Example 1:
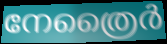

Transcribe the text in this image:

നേത്രൈർ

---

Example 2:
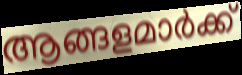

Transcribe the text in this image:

ആങ്ങളമാർക്ക്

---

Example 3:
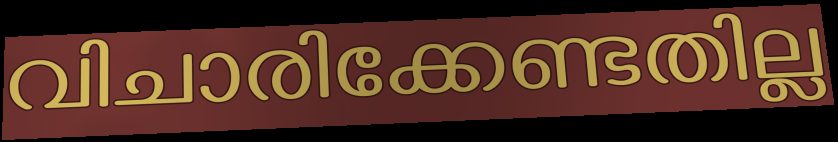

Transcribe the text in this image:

വിചാരിക്കേണ്ടതില്ല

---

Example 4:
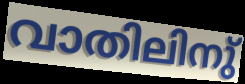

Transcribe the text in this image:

വാതിലിനു്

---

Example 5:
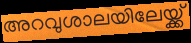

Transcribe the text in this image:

അറവുശാലയിലേയ്ക്ക്